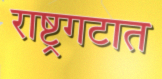
राष्ट्रगटात